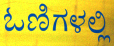
ಓಣಿಗಳಲ್ಲಿ